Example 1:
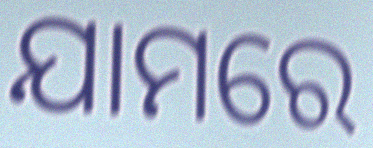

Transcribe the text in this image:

ଯାମରେ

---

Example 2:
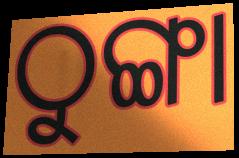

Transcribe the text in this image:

ଠୁଙ୍ଗା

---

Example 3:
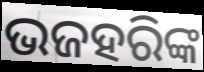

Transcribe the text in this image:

ଭଜହରିଙ୍କ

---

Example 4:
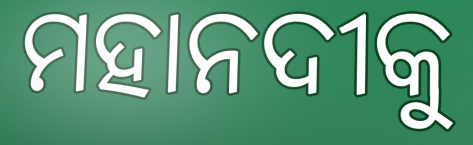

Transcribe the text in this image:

ମହାନଦୀକୁ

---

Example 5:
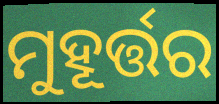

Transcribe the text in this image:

ମୁହୂର୍ତ୍ତର